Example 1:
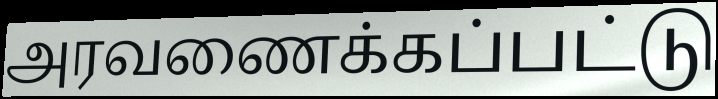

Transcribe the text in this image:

அரவணைக்கப்பட்டு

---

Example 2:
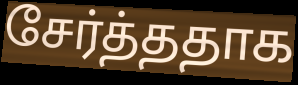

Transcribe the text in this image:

சேர்த்ததாக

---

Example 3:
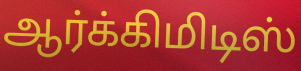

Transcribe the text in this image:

ஆர்க்கிமிடிஸ்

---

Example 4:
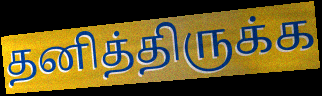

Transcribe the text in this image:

தனித்திருக்க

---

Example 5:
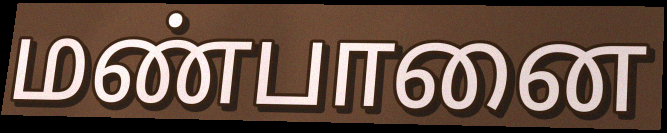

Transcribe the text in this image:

மண்பானை